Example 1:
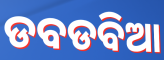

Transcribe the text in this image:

ଡବଡବିଆ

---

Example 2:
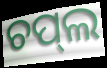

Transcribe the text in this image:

ଚପ୍‌ଲ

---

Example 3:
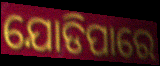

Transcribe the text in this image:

ଯୋଡିପାରେ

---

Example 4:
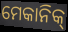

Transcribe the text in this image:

ମେକାନିକ୍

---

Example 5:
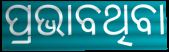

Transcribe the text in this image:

ପ୍ରଭାବଥିବା